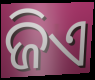
ଜିଏ